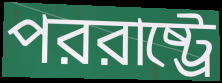
পররাষ্ট্রে